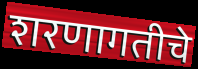
शरणागतीचे